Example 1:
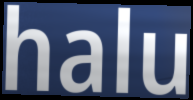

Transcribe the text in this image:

halu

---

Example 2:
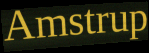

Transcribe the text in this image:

Amstrup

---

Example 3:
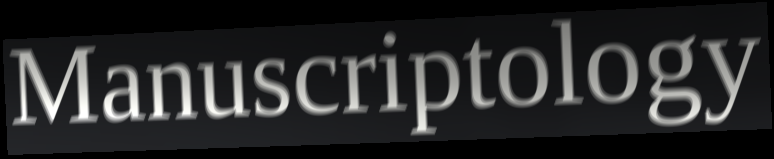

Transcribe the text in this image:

Manuscriptology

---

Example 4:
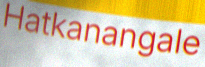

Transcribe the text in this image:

Hatkanangale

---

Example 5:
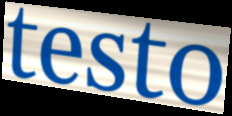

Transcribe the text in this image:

testo